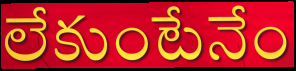
లేకుంటేనేం